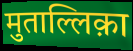
मुताल्लिक़ा